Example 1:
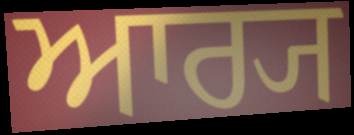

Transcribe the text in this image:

ਆਰ੍ਯ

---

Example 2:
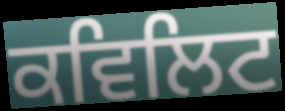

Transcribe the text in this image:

ਕਵਿਲਿਟ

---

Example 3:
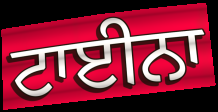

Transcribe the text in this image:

ਟਾਈਨਾ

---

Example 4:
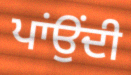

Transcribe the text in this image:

ਪਾਂਉਂਦੀ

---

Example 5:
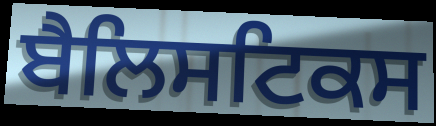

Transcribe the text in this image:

ਬੈਲਿਸਟਿਕਸ